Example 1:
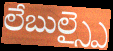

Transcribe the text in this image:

లేబుల్స్పై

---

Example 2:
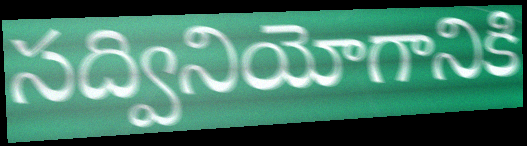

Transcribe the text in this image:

సద్వినియోగానికి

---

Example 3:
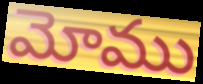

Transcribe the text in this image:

మోము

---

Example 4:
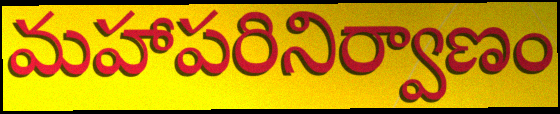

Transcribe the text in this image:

మహాపరినిర్వాణం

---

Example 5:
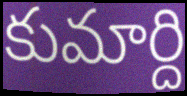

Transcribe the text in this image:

కుమార్ది